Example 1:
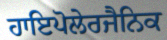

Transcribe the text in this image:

ਹਾਇਪੋਲੇਰਜੈਨਿਕ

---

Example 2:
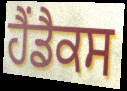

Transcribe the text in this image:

ਹੈਂਡੈਕਸ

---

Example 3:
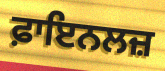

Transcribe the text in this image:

ਫ਼ਾਇਨਲਜ਼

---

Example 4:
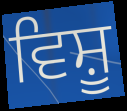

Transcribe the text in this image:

ਵਿਸ਼ੂ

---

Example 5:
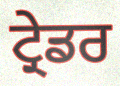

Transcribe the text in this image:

ਟ੍ਰੇਡਰ